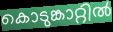
കൊടുങ്കാറ്റിൽ